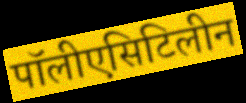
पॉलीएसिटिलीन